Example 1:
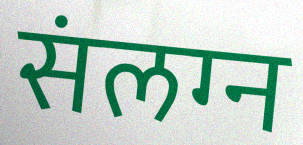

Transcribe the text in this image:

संलग्‍न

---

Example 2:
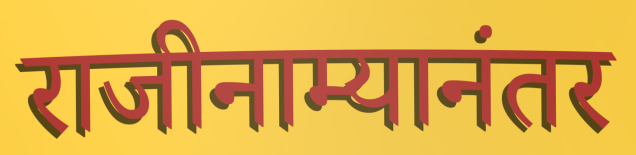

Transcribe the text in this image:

राजीनाम्यानंतर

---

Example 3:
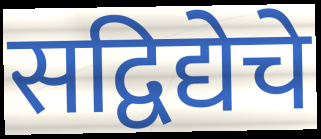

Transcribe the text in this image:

सद्विद्येचे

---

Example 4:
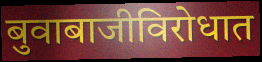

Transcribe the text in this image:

बुवाबाजीविरोधात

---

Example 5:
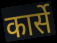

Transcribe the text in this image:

कार्से